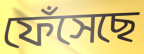
ফেঁসেছে